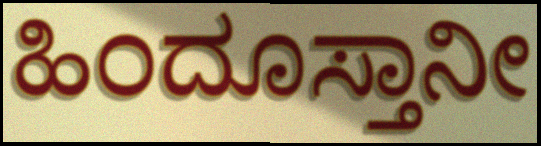
ಹಿಂದೂಸ್ತಾನೀ